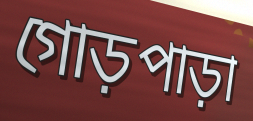
গোড়পাড়া